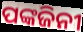
ପଙ୍କଜିନୀ